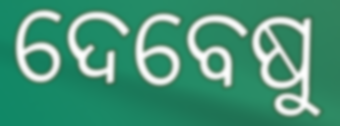
ଦେବେଷୁ